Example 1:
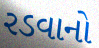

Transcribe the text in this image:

રડવાનો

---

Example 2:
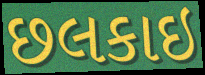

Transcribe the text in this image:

છલકાઇ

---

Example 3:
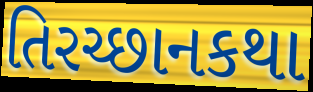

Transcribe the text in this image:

તિરચ્છાનકથા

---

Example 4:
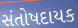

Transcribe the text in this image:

સંતોષદાયક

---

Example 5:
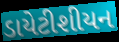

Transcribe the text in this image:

ડાયેટીશીયન